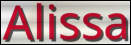
Alissa